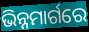
ଭିନ୍ନମାର୍ଗରେ